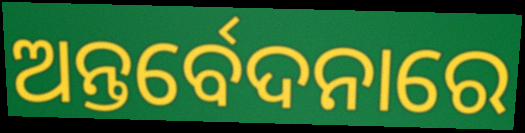
ଅନ୍ତର୍ବେଦନାରେ